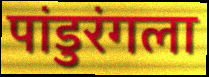
पांडुरंगला